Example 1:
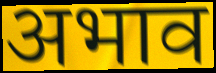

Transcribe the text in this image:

अभाव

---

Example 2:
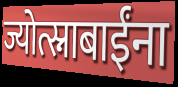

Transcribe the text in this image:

ज्योत्स्नाबाईंना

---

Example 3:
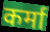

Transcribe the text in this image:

कर्मा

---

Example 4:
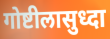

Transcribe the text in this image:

गोष्टीलासुध्दा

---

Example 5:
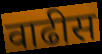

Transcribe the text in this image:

वाढीस